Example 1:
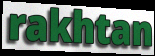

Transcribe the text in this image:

rakhtan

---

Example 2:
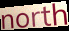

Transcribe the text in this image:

north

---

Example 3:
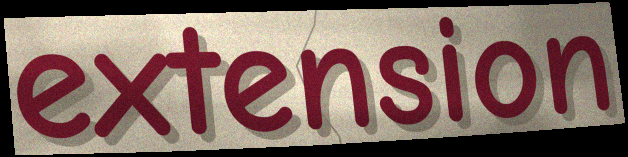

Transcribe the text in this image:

extension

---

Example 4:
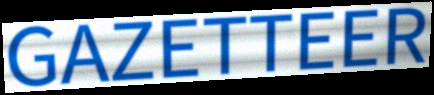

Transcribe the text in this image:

GAZETTEER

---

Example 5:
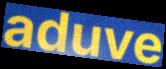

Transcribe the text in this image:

aduve